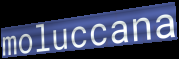
moluccana